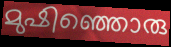
മുഷിഞ്ഞൊരു